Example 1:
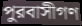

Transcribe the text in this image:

পুরবাসীগণ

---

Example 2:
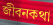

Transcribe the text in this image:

জীবনকথা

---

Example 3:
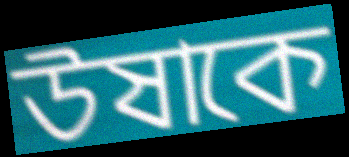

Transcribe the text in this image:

উষাকে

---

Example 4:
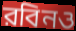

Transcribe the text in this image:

রবিনও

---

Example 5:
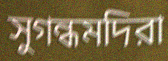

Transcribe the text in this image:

সুগন্ধমদিরা